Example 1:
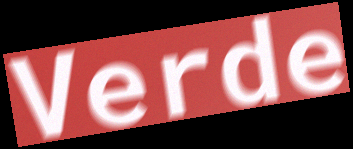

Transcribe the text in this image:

Verde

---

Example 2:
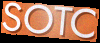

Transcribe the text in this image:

SOTC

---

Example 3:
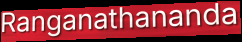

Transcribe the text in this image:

Ranganathananda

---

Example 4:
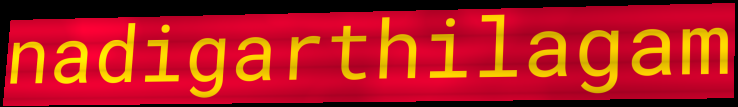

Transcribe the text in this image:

nadigarthilagam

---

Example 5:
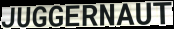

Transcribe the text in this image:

JUGGERNAUT